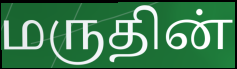
மருதின்